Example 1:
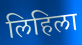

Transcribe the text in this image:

लिहिला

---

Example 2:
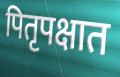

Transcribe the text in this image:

पितृपक्षात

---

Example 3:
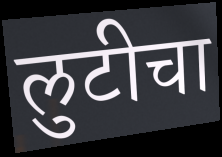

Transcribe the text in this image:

लुटीचा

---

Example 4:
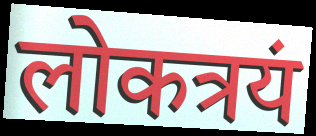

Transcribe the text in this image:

लोकत्रयं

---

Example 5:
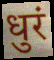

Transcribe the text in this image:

धुरं